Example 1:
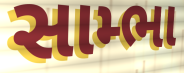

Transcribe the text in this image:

સામ્ભા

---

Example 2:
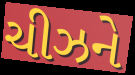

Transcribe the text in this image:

ચીઝને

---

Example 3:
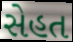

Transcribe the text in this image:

સેહત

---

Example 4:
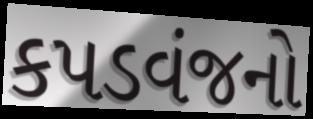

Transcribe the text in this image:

કપડવંજનો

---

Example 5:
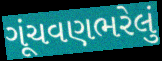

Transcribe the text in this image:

ગૂંચવણભરેલું